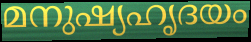
മനുഷ്യഹൃദയം